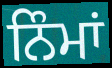
ਨਿੰਮਾਂ